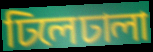
ঢিলেঢালা